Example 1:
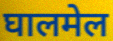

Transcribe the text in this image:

घालमेल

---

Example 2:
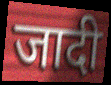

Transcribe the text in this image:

जादी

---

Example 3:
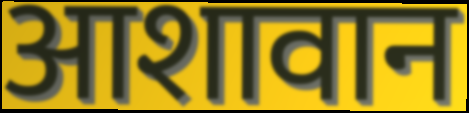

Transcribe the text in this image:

आशावान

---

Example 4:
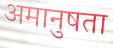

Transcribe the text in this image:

अमानुषता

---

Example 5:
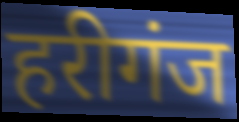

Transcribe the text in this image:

हरीगंज